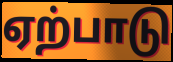
ஏற்பாடு